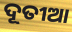
ଦୂତୀଆ